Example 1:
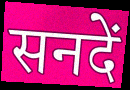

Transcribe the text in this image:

सनदें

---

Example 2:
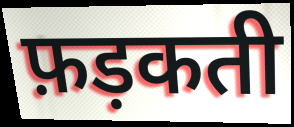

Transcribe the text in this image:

फ़ड़कती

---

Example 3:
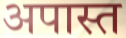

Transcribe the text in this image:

अपास्‍त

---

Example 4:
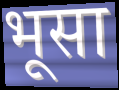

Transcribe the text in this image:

भूसा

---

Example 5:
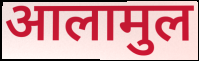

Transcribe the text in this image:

आलामुल